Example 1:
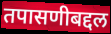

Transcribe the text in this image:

तपासणीबद्दल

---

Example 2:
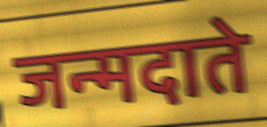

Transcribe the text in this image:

जन्मदाते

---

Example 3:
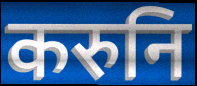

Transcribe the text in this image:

करुनि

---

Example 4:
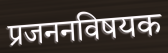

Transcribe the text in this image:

प्रजननविषयक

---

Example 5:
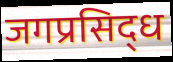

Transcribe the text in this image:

जगप्रसिद्ध